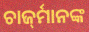
ଚାର୍ଜ୍‍ମାନଙ୍କ